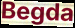
Begda